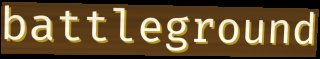
battleground